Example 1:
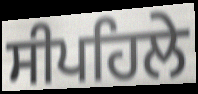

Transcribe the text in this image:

ਸੀਪਹਿਲੇ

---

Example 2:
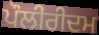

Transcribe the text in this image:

ਪੌਲੀਰੀਦਮ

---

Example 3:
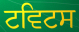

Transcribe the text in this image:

ਟਵਿਟਸ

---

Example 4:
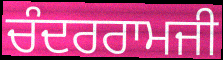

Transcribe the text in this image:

ਚੰਦਰਰਾਮਜੀ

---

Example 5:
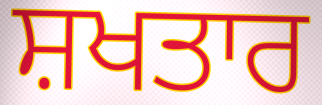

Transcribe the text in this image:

ਸ਼ਖਤਾਰ